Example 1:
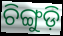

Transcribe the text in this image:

ଚିଙ୍ଗୁଡ଼ି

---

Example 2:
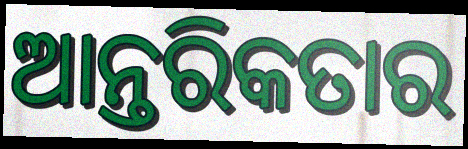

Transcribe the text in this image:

ଆନ୍ତରିକତାର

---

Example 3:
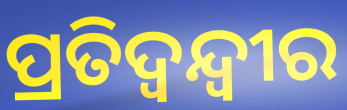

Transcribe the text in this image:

ପ୍ରତିଦ୍ବନ୍ଦ୍ବୀର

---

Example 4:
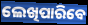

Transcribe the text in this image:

ଲେଖିପାରିବେ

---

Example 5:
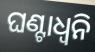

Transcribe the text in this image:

ଘଣ୍ଟାଧ୍ୱନି